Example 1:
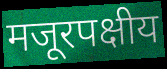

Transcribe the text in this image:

मजूरपक्षीय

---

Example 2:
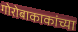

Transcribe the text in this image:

गोरोबाकाकांच्या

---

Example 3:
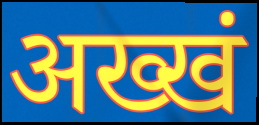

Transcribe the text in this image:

अख्खं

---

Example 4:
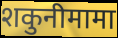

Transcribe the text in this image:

शकुनीमामा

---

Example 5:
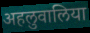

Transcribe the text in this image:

अहलुवालिया